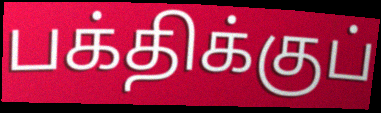
பக்திக்குப்